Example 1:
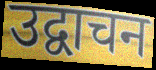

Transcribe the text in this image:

उद्वाचन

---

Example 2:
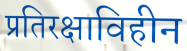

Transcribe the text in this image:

प्रतिरक्षाविहीन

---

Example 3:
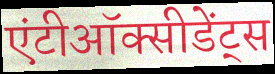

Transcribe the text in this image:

एंटीऑक्सीडेंट्स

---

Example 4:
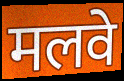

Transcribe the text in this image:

मलवे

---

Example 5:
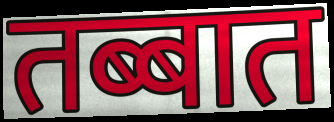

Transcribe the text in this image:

तब्बात